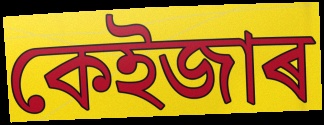
কেইজাৰ